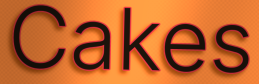
Cakes